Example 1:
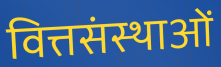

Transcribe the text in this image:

वित्तसंस्थाओं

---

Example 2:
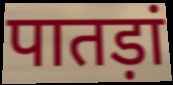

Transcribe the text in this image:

पातड़ां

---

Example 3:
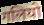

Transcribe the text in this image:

गलियो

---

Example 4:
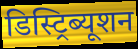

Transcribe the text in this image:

डिस्ट्रिब्यूशन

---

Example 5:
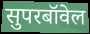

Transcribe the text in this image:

सुपरबॉवेल